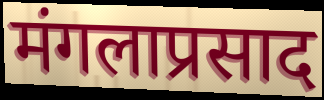
मंगलाप्रसाद